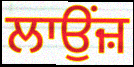
ਲਾਉਂਜ਼